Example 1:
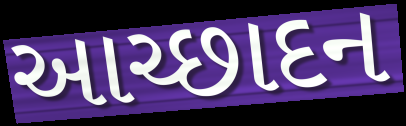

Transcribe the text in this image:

આચ્છાદન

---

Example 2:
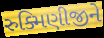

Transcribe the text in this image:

રુક્મિણીજીને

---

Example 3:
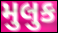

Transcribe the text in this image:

મુલુક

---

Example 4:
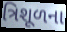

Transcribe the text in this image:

ત્રિશૂળના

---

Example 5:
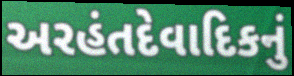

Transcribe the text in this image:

અરહંતદેવાદિકનું